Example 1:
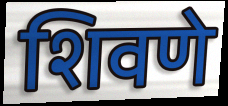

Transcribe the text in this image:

शिवणे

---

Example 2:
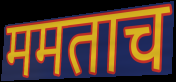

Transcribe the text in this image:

ममताच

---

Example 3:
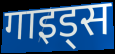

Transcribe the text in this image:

गाइड्स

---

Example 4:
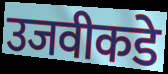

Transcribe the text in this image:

उजवीकडे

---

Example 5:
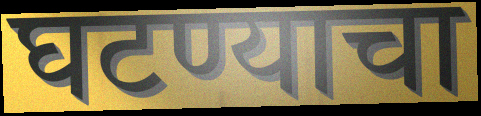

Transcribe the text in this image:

घटण्याचा